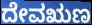
ದೇವಋಣ